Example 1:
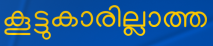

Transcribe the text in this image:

കൂട്ടുകാരില്ലാത്ത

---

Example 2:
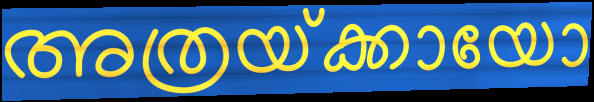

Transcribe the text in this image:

അത്രയ്‌ക്കായോ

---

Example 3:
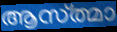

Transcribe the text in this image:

ആസ്ത്മാ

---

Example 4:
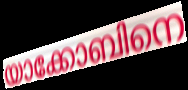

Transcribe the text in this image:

യാക്കോബിനെ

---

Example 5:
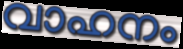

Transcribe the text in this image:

വാഹനം